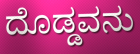
ದೊಡ್ಡವನು